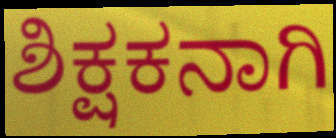
ಶಿಕ್ಷಕನಾಗಿ